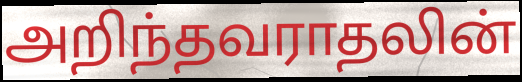
அறிந்தவராதலின்